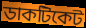
ডাকটিকেট